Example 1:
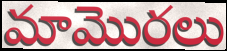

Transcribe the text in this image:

మామొరలు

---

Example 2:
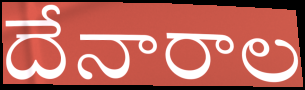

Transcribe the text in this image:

దేనారాల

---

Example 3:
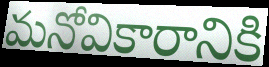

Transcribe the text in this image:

మనోవికారానికి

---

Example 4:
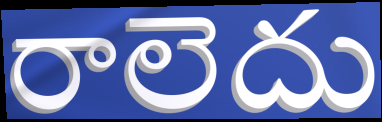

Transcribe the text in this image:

రాలెదు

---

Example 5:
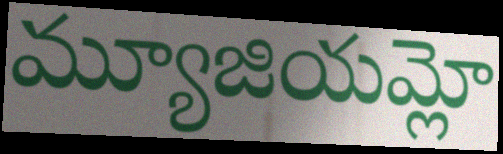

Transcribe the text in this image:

మ్యూజియమ్లో